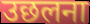
उछलना